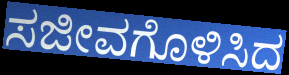
ಸಜೀವಗೊಳಿಸಿದ